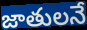
జాతులనే